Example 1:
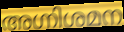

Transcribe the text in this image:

അഗ്നിശമന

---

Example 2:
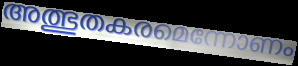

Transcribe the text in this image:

അത്ഭുതകരമെന്നോണം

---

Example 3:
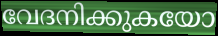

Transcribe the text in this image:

വേദനിക്കുകയോ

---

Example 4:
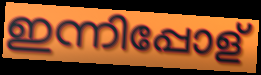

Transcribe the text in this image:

ഇന്നിപ്പോള്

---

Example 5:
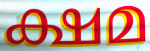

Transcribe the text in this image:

ക്ഷമ